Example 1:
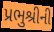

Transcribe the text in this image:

પ્રભુશ્રીની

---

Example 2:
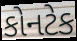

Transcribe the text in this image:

કોનટેક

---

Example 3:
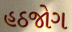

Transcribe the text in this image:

હઠજોગ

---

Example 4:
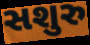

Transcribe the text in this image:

સશુરુ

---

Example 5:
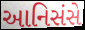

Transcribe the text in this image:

આનિસંસે